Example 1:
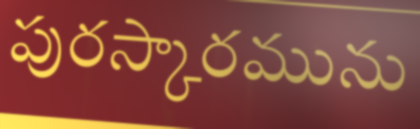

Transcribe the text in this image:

పురస్కారమును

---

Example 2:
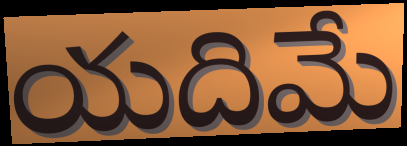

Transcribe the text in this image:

యదిమే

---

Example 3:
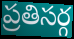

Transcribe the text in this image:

ప్రతిసర్గ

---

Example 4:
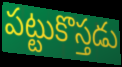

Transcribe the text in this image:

పట్టుకొస్తడు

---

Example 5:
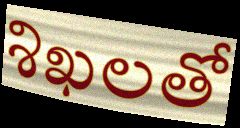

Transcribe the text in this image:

శిఖలతో